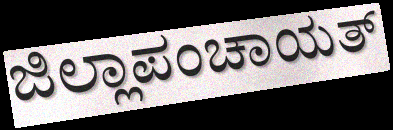
ಜಿಲ್ಲಾಪಂಚಾಯತ್